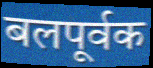
बलपूर्वक